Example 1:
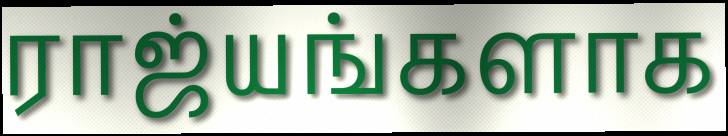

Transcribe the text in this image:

ராஜ்யங்களாக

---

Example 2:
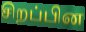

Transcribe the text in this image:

சிறப்பின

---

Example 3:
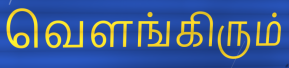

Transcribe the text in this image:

வெளங்கிரும்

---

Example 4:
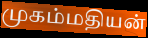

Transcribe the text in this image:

முகம்மதியன்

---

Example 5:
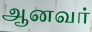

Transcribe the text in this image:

ஆனவர்